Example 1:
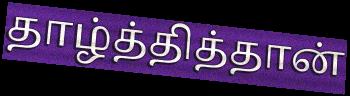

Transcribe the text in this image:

தாழ்த்தித்தான்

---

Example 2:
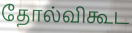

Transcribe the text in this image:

தோல்விகூட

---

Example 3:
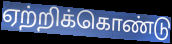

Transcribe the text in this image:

ஏற்றிக்கொண்டு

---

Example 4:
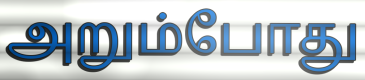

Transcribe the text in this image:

அறும்போது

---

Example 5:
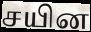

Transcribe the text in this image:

சயின